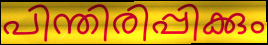
പിന്തിരിപ്പിക്കും